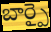
బార్పై